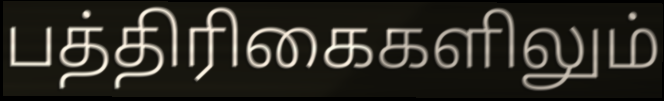
பத்திரிகைகளிலும்